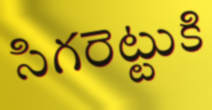
సిగరెట్టుకి